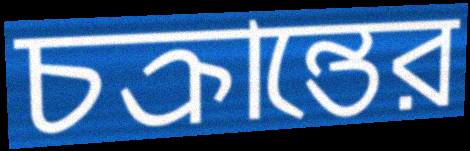
চক্রান্তের